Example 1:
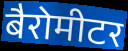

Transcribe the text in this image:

बैरोमीटर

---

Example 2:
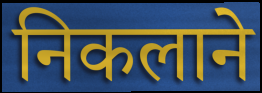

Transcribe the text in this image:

निकलाने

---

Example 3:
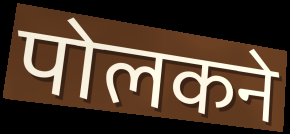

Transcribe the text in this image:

पोलकने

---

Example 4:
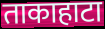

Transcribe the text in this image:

ताकाहाटा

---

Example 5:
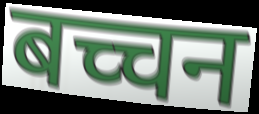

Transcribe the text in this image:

बच्‍चन